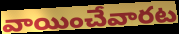
వాయించేవారట